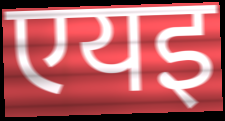
एयइ